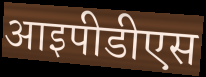
आइपीडीएस